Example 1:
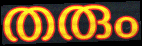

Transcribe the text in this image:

തരും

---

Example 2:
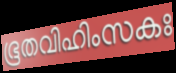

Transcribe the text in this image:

ഭൂതവിഹിംസകഃ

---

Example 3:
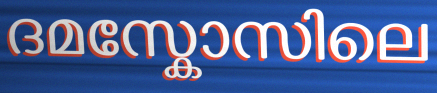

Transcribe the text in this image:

ദമസ്കോസിലെ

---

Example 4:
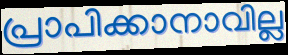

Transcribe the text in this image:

പ്രാപിക്കാനാവില്ല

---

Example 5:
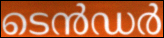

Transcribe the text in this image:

ടെൻഡർ